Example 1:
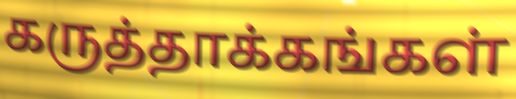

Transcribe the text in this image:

கருத்தாக்கங்கள்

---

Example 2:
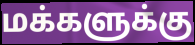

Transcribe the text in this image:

மக்களுக்கு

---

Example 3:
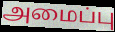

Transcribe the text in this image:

அமைப்பு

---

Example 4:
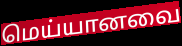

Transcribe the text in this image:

மெய்யானவை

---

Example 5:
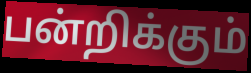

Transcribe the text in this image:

பன்றிக்கும்